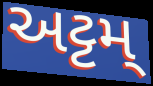
અટ્ટમ્